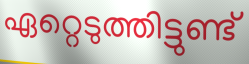
ഏറ്റെടുത്തിട്ടുണ്ട്